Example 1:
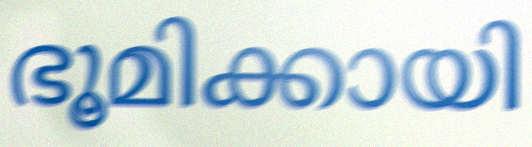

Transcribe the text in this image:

ഭൂമിക്കായി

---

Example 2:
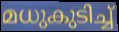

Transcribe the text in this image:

മധുകുടിച്ച്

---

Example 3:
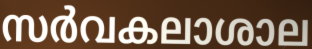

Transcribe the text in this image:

സർവകലാശാല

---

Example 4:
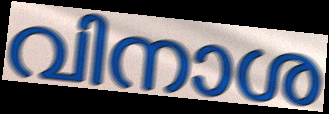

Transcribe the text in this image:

വിനാശ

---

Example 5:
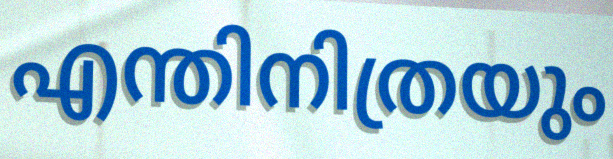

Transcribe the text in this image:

എന്തിനിത്രയും